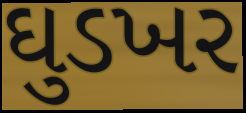
ઘુડખર